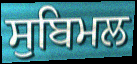
ਸੁਬਿਮਲ